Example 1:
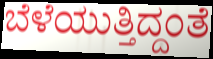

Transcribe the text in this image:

ಬೆಳೆಯುತ್ತಿದ್ದಂತೆ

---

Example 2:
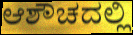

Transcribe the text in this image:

ಆಶೌಚದಲ್ಲಿ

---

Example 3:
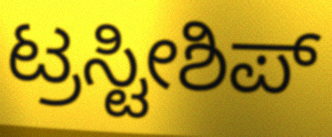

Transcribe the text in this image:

ಟ್ರಸ್ಟೀಶಿಪ್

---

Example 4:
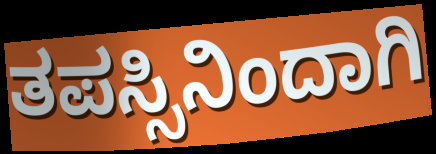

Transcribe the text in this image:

ತಪಸ್ಸಿನಿಂದಾಗಿ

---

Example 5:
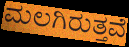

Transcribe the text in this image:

ಮಲಗಿರುತ್ತವೆ